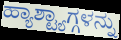
ಹ್ಯಾಶ್ಟ್ಯಾಗ್ಗಳನ್ನು